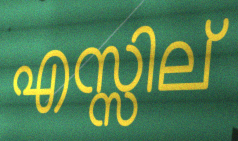
എസ്സില്